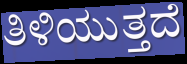
ತಿಳಿಯುತ್ತದೆ